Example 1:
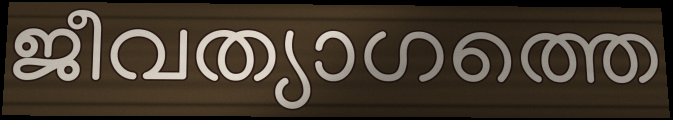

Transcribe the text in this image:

ജീവത്യാഗത്തെ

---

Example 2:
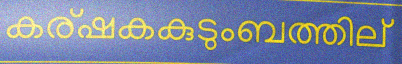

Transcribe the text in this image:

കര്ഷകകുടുംബത്തില്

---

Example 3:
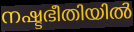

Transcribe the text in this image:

നഷ്ടഭീതിയിൽ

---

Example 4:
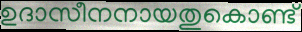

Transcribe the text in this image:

ഉദാസീനനായതുകൊണ്ട്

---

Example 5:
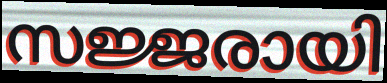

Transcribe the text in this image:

സജ്ജരായി